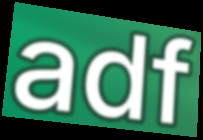
adf